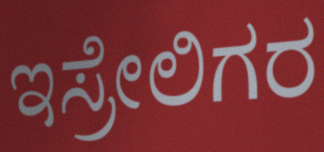
ಇಸ್ರೇಲಿಗರ